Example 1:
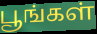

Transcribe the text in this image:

பூங்கள்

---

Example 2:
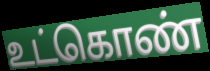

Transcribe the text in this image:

உட்கொண்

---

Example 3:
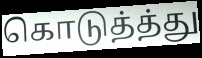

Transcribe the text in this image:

கொடுத்த்து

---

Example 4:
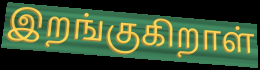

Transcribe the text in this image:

இறங்குகிறாள்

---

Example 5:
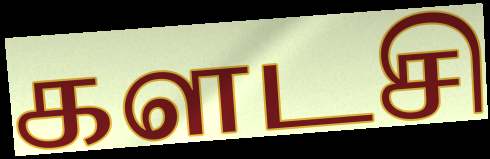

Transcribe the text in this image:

களடசி